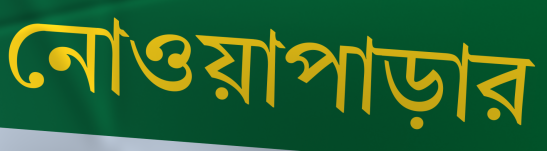
নোওয়াপাড়ার